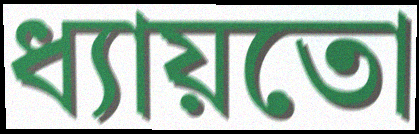
ধ্যায়তো